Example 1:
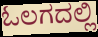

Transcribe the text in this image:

ಓಲಗದಲ್ಲಿ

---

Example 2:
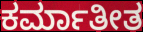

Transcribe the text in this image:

ಕರ್ಮಾತೀತ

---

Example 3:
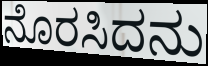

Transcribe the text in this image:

ನೊರಸಿದನು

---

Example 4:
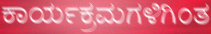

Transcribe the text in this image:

ಕಾರ್ಯಕ್ರಮಗಳಿಗಿಂತ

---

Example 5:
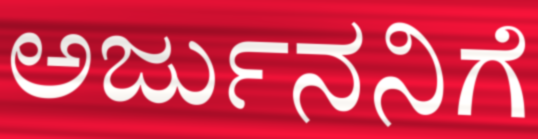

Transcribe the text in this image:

ಅರ್ಜುನನಿಗೆ